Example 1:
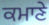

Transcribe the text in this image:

ਕਮਾਣੇ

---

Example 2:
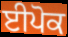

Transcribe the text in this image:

ਈਪੋਕ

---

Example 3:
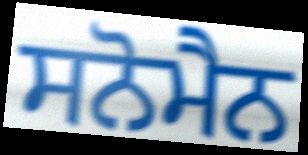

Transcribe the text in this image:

ਸਨੋਮੈਨ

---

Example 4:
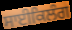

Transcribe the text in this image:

ਸਾਈਕਿਲੰਗ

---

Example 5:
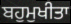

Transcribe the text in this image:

ਬਹੁਮੁਖੀਤਾ